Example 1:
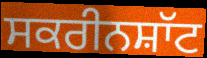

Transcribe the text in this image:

ਸਕਰੀਨਸ਼ਾੱਟ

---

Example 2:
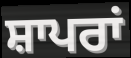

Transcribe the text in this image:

ਸ਼ਾਪਰਾਂ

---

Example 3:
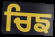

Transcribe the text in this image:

ਚਿਙ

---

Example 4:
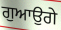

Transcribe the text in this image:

ਗੁਆਉਗੇ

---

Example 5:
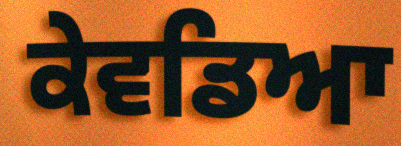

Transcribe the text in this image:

ਕੇਵਡਿਆ